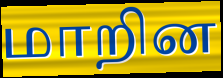
மாறின